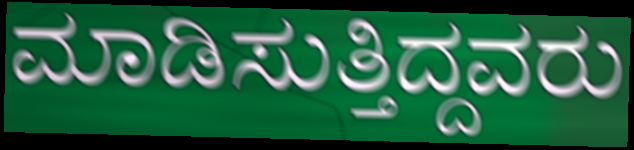
ಮಾಡಿಸುತ್ತಿದ್ದವರು